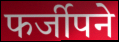
फर्जीपने